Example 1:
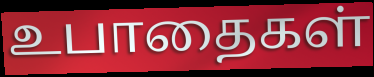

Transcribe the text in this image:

உபாதைகள்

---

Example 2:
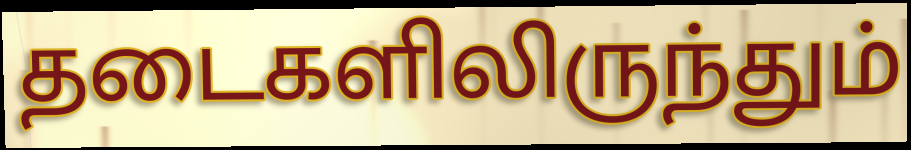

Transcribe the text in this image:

தடைகளிலிருந்தும்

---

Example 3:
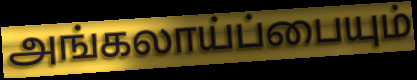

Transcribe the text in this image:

அங்கலாய்ப்பையும்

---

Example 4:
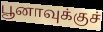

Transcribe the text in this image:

பூனாவுக்குச்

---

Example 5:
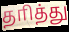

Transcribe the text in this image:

தரித்து